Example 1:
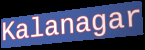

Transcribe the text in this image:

Kalanagar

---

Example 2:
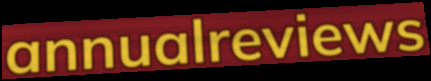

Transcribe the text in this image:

annualreviews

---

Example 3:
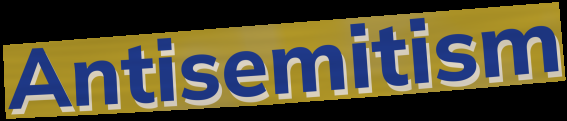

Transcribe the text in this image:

Antisemitism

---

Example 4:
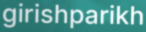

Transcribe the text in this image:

girishparikh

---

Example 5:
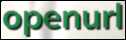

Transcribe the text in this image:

openurl